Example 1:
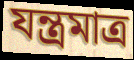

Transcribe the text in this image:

যন্ত্রমাত্র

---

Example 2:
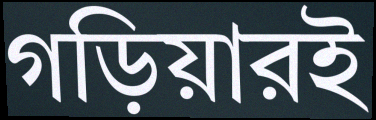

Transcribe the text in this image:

গড়িয়ারই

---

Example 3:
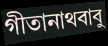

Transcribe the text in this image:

গীতানাথবাবু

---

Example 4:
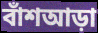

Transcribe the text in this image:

বাঁশআড়া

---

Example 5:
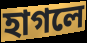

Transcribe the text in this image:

হাগলে